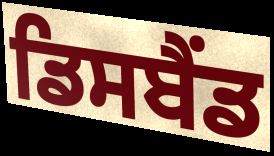
ਡਿਸਬੈਂਡ